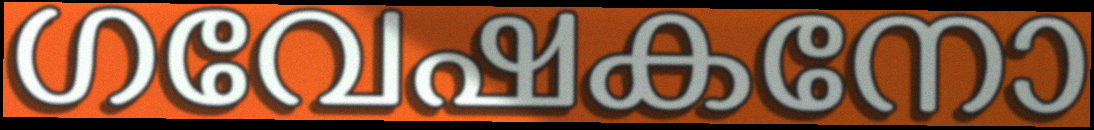
ഗവേഷകനോ